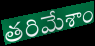
తరిమేశాం